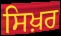
ਸਿਖ਼ਰ